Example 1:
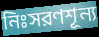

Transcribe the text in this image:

নিঃসরণশূন্য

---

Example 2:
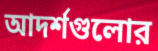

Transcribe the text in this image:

আদর্শগুলোর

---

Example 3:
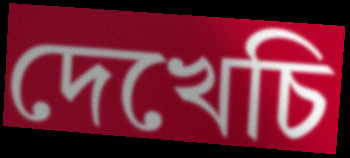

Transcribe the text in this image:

দেখেচি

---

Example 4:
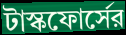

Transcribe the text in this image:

টাস্কফোর্সের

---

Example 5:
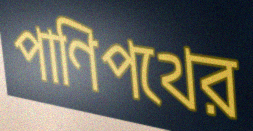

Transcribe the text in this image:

পাণিপথের